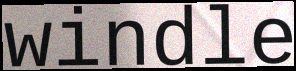
windle